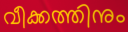
വീക്കത്തിനും